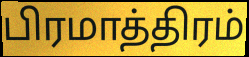
பிரமாத்திரம்